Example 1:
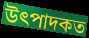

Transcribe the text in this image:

উৎপাদকত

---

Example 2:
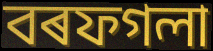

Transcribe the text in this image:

বৰফগলা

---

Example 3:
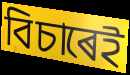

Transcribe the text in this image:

বিচাৰেই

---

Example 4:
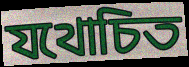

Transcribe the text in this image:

যথোচিত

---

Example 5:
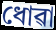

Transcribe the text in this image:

ধোৱা